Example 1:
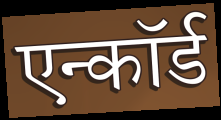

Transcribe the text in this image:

एन्कॉर्ड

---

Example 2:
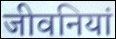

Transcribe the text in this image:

जीवनियां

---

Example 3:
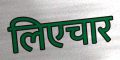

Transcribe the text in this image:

लिएचार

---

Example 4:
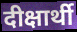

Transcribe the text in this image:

दीक्षार्थी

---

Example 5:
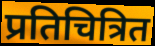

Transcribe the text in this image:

प्रतिचित्रित